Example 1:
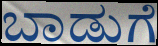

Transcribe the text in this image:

ಬಾಡುಗೆ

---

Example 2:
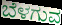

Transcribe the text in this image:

ಬೆಳಗುವ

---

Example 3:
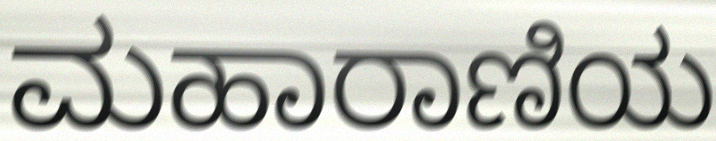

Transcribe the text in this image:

ಮಹಾರಾಣಿಯ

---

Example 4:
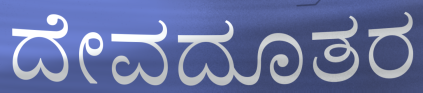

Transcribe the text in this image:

ದೇವದೂತರ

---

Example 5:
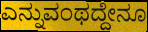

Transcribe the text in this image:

ಎನ್ನುವಂಥದ್ದೇನೂ